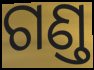
ଗଣ୍ଡ